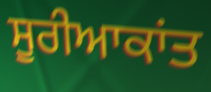
ਸੂਰੀਆਕਾਂਤ